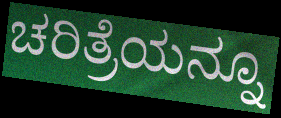
ಚರಿತ್ರೆಯನ್ನೂ